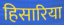
हिसारिया